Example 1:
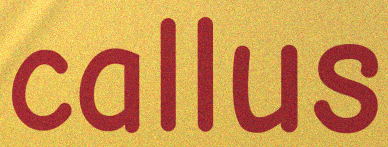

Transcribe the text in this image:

callus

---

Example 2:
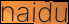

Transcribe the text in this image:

naidu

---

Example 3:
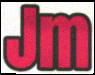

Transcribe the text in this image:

Jm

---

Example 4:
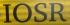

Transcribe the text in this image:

IOSR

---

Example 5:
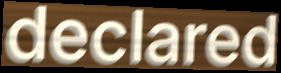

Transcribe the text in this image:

declared